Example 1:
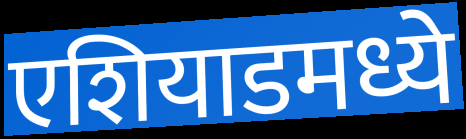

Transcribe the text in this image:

एशियाडमध्ये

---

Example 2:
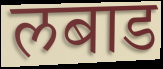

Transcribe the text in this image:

लबाड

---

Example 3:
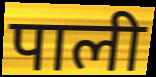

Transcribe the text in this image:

पाली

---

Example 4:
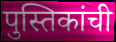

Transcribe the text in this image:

पुस्तिकांची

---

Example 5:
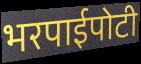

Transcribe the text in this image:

भरपाईपोटी